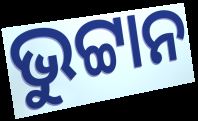
ଭୁଟ୍ଟାନ